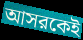
আসরকেই